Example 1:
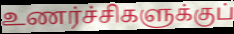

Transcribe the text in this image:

உணர்ச்சிகளுக்குப்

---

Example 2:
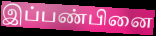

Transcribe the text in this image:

இப்பண்பினை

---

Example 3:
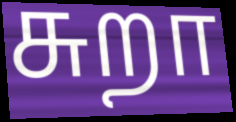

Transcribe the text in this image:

சுறா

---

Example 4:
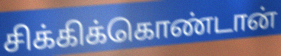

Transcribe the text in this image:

சிக்கிக்கொண்டான்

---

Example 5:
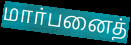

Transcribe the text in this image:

மார்பனைத்